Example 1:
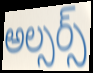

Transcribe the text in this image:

అల్సర్స్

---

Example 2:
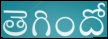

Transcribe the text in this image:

తెగిందో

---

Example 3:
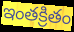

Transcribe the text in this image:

ఇంతక్రితం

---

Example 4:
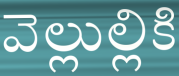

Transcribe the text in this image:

వెల్లుల్లికి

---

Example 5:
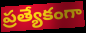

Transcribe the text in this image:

ప్రత్యేకంగా